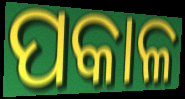
ପକାଳ